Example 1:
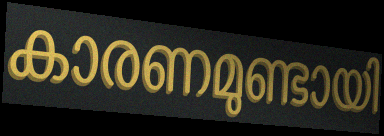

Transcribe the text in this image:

കാരണമുണ്ടായി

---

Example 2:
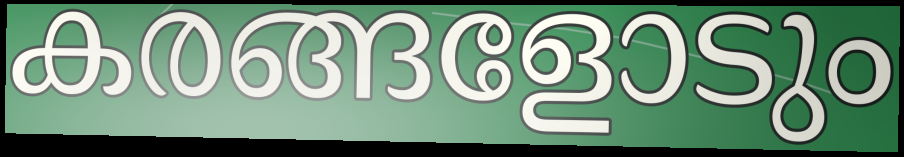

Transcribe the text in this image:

കരങ്ങളോടും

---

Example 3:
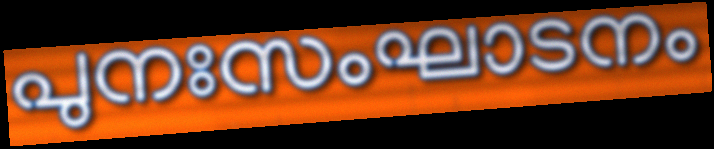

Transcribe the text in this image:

പുനഃസംഘാടനം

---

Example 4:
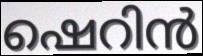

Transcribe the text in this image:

ഷെറിൻ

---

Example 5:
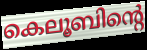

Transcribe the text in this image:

കെലൂബിന്റെ